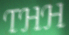
THH